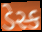
ડેસ્ક